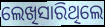
ଲେଖିସାରିଥିଲେ